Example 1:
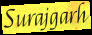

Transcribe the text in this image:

Surajgarh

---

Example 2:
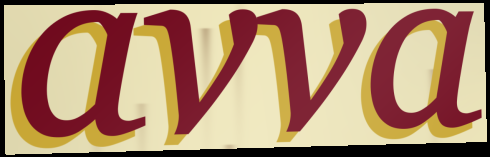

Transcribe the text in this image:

avva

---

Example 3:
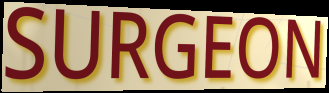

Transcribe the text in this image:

SURGEON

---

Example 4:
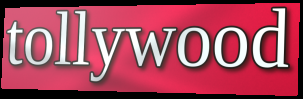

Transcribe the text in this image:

tollywood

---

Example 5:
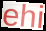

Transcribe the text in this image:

ehi